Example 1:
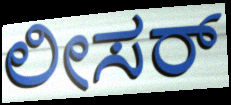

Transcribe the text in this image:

ಲೀಸರ್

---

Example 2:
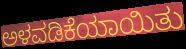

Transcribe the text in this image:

ಅಳವಡಿಕೆಯಾಯಿತು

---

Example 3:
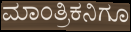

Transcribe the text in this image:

ಮಾಂತ್ರಿಕನಿಗೂ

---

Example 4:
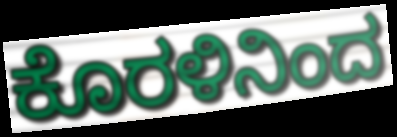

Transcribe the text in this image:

ಕೊರಳಿನಿಂದ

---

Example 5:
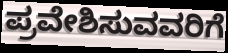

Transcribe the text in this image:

ಪ್ರವೇಶಿಸುವವರಿಗೆ